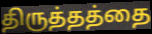
திருத்தத்தை